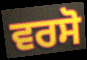
ਵਰਸੋ